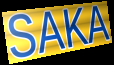
SAKA